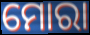
ମୋରା